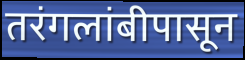
तरंगलांबीपासून